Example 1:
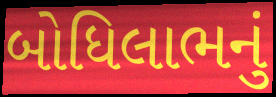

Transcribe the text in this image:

બોધિલાભનું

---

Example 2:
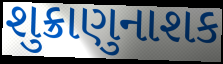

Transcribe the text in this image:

શુક્રાણુનાશક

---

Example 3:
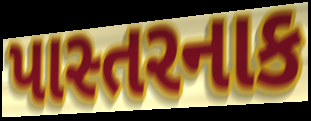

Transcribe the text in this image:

પાસ્તરનાક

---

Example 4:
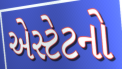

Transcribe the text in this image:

એસ્ટેટનો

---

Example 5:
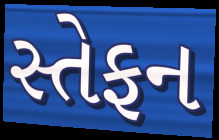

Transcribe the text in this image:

સ્તેફન